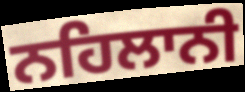
ਨਹਿਲਾਨੀ